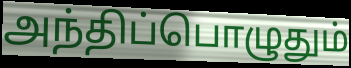
அந்திப்பொழுதும்